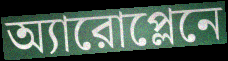
অ্যারোপ্লেনে